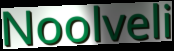
Noolveli